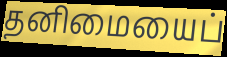
தனிமையைப்